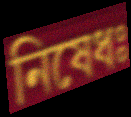
নিষেধঃ